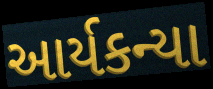
આર્યકન્યા